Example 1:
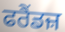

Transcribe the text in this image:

ਫਰੈਂਡਜ਼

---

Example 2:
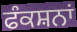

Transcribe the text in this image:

ਫੰਕਸ਼ਨਾਂ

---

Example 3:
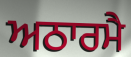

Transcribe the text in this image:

ਅਠਾਰਮੈ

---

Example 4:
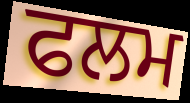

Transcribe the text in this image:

ਫਲਮ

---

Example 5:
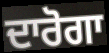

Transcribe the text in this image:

ਦਾਰੋਗਾ